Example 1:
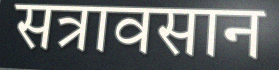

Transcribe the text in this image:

सत्रावसान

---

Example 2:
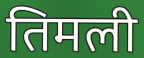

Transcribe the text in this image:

तिमली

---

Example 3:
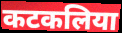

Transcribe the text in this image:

कटकलिया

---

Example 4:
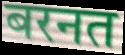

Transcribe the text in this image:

बरनत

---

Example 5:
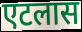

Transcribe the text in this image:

एटलास